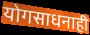
योगसाधनाही